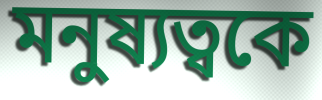
মনুষ্যত্বকে